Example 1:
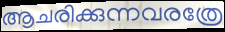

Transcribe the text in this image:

ആചരിക്കുന്നവരത്രേ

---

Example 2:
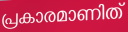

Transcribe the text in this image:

പ്രകാരമാണിത്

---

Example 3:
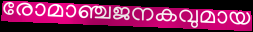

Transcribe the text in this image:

രോമാഞ്ചജനകവുമായ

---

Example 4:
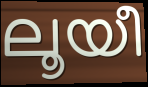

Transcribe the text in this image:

ലൂയീ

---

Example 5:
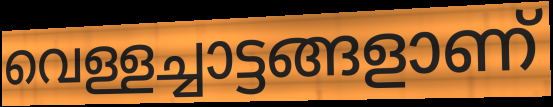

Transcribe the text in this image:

വെള്ളച്ചാട്ടങ്ങളാണ്